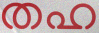
തഹ